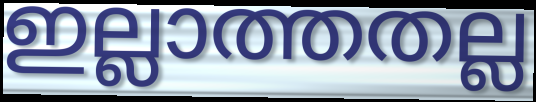
ഇല്ലാത്തതല്ല